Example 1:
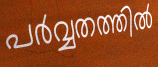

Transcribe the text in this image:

പർവ്വതത്തിൽ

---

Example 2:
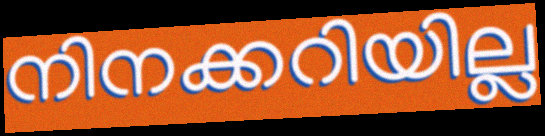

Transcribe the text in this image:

നിനക്കറിയില്ല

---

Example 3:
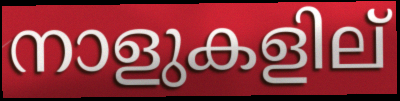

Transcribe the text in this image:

നാളുകളില്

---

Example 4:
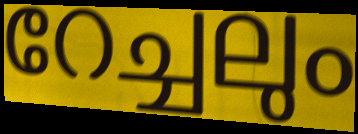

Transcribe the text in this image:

റേച്ചലും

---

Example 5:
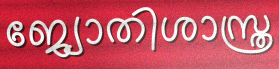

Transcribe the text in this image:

ജ്യോതിശാസ്ത്ര